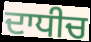
ਦਾਧੀਚ